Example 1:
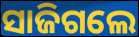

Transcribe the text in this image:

ସାଜିଗଲେ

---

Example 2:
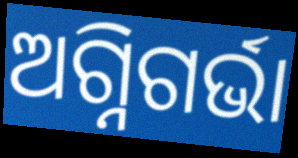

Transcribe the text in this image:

ଅଗ୍ନିଗର୍ଭା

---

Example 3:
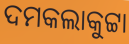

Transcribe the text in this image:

ଦମକଲାକୁଟ୍ଟା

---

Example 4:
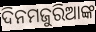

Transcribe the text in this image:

ଦିନମଜୁରିଆଙ୍କ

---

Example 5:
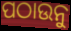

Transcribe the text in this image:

ପଠାଉନୁ